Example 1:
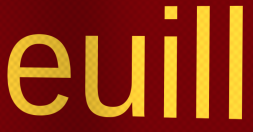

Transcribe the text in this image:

euill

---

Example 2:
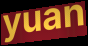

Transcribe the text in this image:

yuan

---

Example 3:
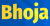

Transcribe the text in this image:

Bhoja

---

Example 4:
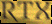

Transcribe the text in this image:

RTX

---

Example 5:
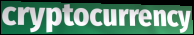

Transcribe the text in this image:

cryptocurrency